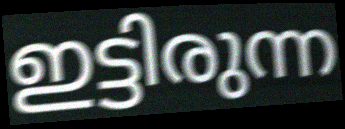
ഇട്ടിരുന്ന